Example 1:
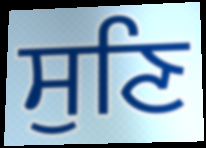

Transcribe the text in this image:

ਸੁਣਿ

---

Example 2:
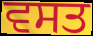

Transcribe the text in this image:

ਵਸਤ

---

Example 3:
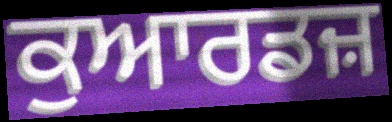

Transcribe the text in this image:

ਕੁਆਰਡਜ਼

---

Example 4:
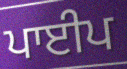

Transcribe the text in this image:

ਪਾਈਪ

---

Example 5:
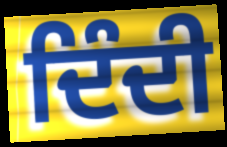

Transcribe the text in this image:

ਦਿੰਦੀ